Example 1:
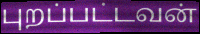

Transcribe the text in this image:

புறப்பட்டவன்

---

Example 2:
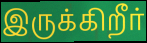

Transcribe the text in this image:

இருக்கிறீர்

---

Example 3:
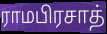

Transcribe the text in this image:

ராமபிரசாத்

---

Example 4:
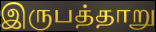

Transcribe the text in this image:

இருபத்தாறு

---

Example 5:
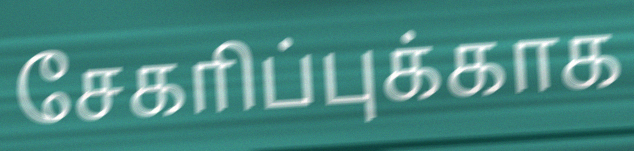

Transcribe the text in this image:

சேகரிப்புக்காக